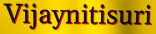
Vijaynitisuri